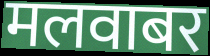
मलवाबर